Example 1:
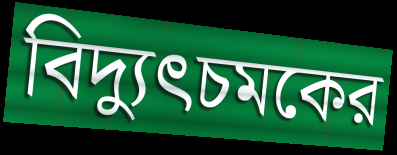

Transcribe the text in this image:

বিদ্যুৎচমকের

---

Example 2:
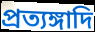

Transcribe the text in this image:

প্রত্যঙ্গাদি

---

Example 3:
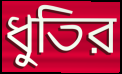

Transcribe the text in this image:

ধুতির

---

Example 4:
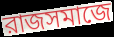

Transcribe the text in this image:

রাজসমাজে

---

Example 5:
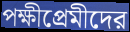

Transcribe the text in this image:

পক্ষীপ্রেমীদের